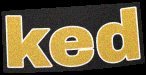
ked